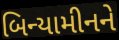
બિન્યામીનને